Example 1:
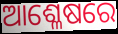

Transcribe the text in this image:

ଆଶ୍ଳେଷରେ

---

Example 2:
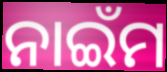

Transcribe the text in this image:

ନାଇଁମ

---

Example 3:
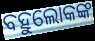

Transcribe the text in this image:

ବହୁଲୋକଙ୍କ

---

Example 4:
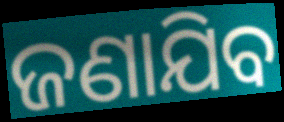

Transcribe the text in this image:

ଜଣାଯିବ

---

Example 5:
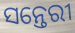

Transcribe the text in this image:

ସନ୍ତେରୀ